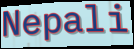
Nepali